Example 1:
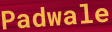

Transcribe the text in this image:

Padwale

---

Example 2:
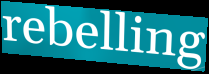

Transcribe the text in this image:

rebelling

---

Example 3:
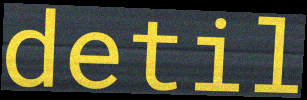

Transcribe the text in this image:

detil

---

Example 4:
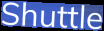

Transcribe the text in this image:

Shuttle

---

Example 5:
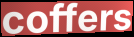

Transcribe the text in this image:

coffers